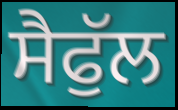
ਸੈਫੁੱਲ